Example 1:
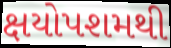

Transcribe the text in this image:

ક્ષયોપશમથી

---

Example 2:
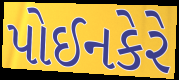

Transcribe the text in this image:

પોઈનકેરે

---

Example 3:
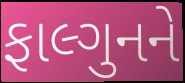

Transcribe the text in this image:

ફાલ્ગુનને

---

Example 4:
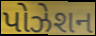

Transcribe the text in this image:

પોઝેશન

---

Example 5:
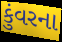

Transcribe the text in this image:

કુંવરના